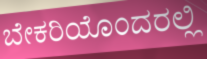
ಬೇಕರಿಯೊಂದರಲ್ಲಿ